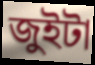
জুইটা